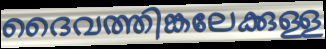
ദൈവത്തിങ്കലേക്കുള്ള